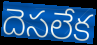
దెసలేక